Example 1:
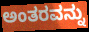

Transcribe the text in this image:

ಅಂತರವನ್ನು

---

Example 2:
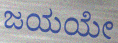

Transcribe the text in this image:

ಜಯಯೇ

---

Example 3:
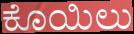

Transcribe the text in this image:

ಕೊಯಿಲು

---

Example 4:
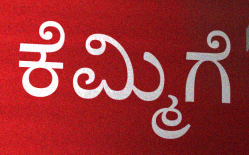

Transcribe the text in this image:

ಕೆಮ್ಮಿಗೆ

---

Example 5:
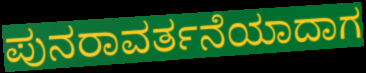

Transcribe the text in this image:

ಪುನರಾವರ್ತನೆಯಾದಾಗ